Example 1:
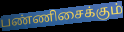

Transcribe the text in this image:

பண்ணிசைக்கும்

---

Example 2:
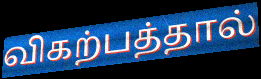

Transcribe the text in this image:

விகற்பத்தால்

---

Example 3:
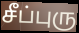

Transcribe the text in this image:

சீப்புரு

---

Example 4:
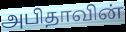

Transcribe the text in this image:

அபிதாவின்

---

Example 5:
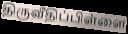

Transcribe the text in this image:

திருவீதிப்பிள்ளை